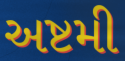
અષ્ટમી